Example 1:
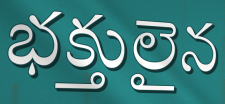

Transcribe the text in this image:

భక్తులైన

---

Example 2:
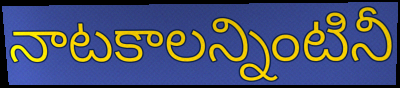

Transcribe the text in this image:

నాటకాలన్నింటినీ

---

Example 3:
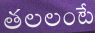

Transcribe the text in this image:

తలలంటే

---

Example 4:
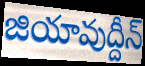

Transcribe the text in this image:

జియావుద్దీన్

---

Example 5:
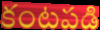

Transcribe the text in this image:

కంటపడి